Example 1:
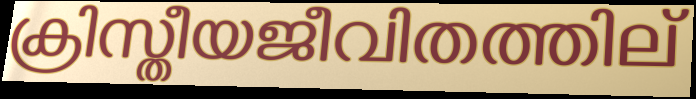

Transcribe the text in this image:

ക്രിസ്തീയജീവിതത്തില്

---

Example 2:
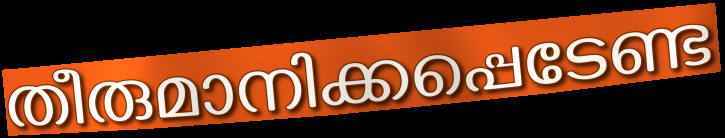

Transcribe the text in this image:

തീരുമാനിക്കപ്പെടേണ്ട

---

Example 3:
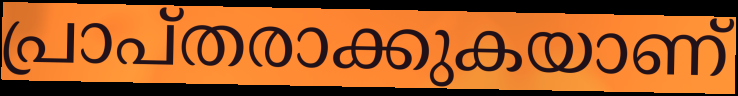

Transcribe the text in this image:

പ്രാപ്തരാക്കുകയാണ്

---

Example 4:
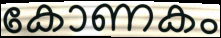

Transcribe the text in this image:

കോണകം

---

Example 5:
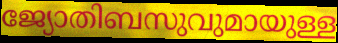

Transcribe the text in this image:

ജ്യോതിബസുവുമായുള്ള